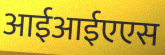
आईआईएएस